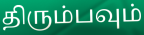
திரும்பவும்